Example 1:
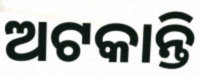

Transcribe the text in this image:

ଅଟକାନ୍ତି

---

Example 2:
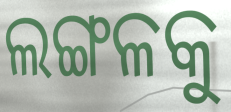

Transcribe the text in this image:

ଲଙ୍ଗଳକୁ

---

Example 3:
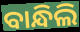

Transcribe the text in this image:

ବାନ୍ଧିଲି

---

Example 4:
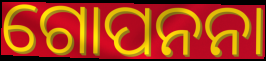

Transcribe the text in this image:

ଗୋପନନା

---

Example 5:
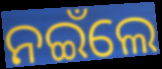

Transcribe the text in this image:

ନଇଁଲେ